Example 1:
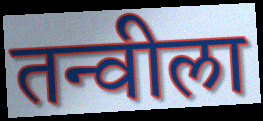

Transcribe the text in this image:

तन्वीला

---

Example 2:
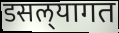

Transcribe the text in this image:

डसल्यागत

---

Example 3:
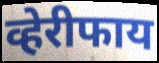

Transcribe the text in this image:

व्हेरीफाय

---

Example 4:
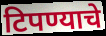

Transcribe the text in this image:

टिपण्याचे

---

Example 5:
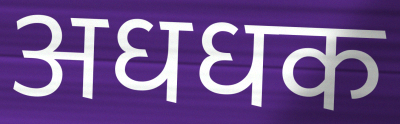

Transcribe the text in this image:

अधधक